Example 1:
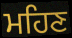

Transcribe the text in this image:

ਮਹਿਣ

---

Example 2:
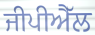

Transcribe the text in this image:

ਜੀਪੀਐੱਲ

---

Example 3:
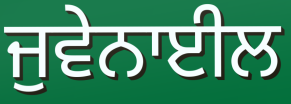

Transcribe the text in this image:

ਜੁਵੇਨਾਈਲ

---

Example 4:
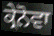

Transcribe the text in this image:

ਕ੍ਰੇਨੋਵਾ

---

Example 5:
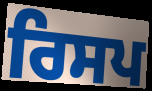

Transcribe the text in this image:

ਰਿਸਪ